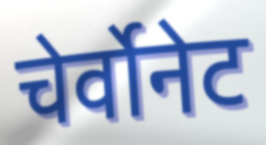
चेर्वोनेट